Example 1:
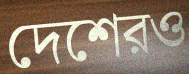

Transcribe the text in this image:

দেশেরও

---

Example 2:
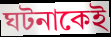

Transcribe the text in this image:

ঘটনাকেই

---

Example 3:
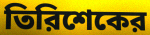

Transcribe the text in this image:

তিরিশেকের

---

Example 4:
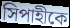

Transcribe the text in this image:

সিপাহীকে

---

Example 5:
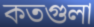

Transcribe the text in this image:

কতগুলা